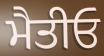
ਮੈਤੀਓ